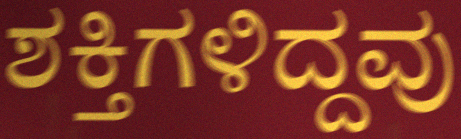
ಶಕ್ತಿಗಳಿದ್ದವು